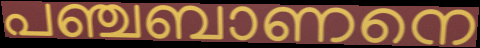
പഞ്ചബാണനെ